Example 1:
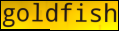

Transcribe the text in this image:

goldfish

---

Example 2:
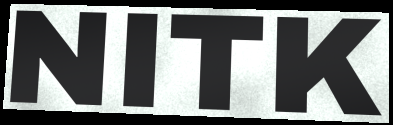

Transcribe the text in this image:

NITK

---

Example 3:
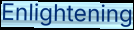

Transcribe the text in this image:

Enlightening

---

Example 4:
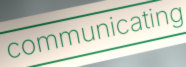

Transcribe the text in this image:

communicating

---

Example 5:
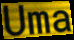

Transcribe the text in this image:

Uma